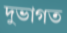
দুভাগত